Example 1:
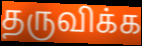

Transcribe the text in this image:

தருவிக்க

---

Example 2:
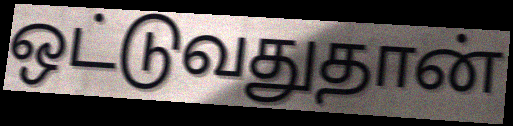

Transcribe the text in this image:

ஒட்டுவதுதான்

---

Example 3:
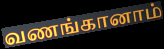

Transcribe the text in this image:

வணங்கானாம்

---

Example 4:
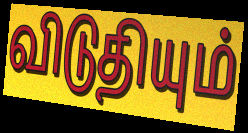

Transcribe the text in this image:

விடுதியும்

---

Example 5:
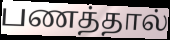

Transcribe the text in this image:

பணத்தால்